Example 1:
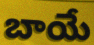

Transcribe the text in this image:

బాయే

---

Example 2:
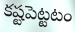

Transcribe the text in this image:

కష్టపెట్టటం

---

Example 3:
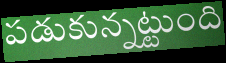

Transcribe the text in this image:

పడుకున్నట్టుంది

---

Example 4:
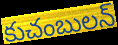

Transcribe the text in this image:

కుచంబులన్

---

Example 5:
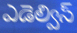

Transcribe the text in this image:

ఎడెల్విస్